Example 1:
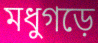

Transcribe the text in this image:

মধুগড়ে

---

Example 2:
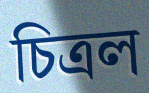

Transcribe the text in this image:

চিত্রল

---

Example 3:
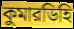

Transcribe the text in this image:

কুমারডিহি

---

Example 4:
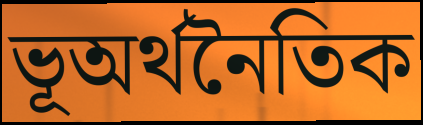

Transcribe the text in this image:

ভূঅর্থনৈতিক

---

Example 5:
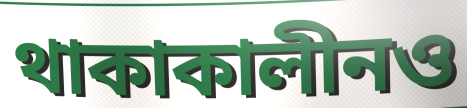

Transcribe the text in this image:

থাকাকালীনও